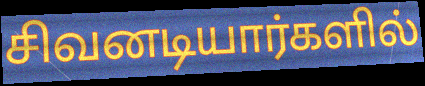
சிவனடியார்களில்